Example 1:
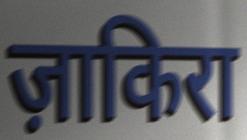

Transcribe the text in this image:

ज़ाकिरा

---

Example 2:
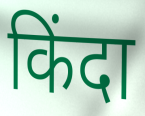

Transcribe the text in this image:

किंदा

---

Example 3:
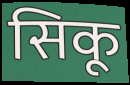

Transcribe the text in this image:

सिकू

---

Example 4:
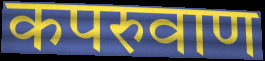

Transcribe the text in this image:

कपरुवाण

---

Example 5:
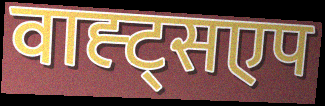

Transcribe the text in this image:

वाह्ट्सएप